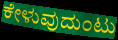
ಕೇಳುವುದುಂಟು